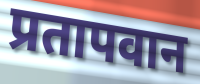
प्रतापवान